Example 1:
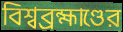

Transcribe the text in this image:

বিশ্বব্রহ্মাণ্ডের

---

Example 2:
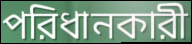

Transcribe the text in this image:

পরিধানকারী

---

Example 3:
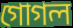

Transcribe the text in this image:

গোগল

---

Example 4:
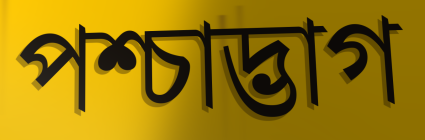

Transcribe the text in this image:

পশ্চাদ্ভাগ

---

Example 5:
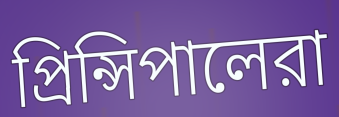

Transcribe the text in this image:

প্রিন্সিপালেরা